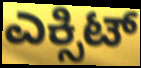
ಎಕ್ಸಿಟ್